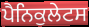
ਪੈਨਿਕੁਲੇਟਸ